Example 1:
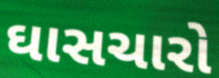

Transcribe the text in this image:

ઘાસચારો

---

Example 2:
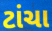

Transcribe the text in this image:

ટાંચા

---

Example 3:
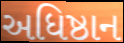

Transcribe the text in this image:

અધિષ્ઠાન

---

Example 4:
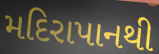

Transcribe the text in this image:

મદિરાપાનથી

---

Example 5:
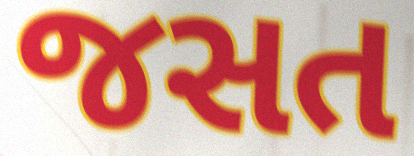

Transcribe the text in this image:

જસત